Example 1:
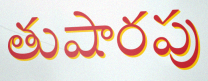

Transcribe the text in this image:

తుషారపు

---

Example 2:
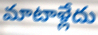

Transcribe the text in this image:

మాటాళ్లేదు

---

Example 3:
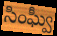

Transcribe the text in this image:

సింఘ్వీ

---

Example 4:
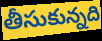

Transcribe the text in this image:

తీసుకున్నది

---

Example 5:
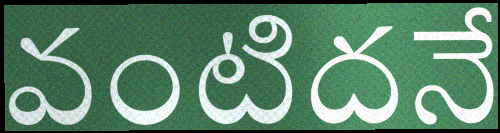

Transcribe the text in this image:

వంటిదనే